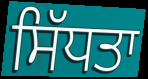
ਸਿੱਧਤਾ